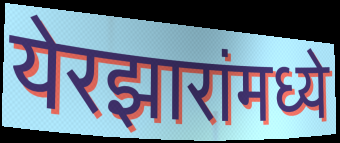
येरझारांमध्ये